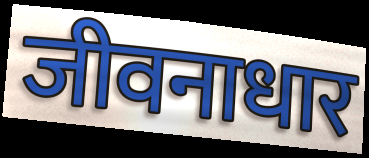
जीवनाधार